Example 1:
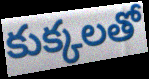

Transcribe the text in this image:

కుక్కలతో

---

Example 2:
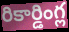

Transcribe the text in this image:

రికార్డింగ్ల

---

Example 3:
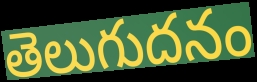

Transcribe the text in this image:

తెలుగుదనం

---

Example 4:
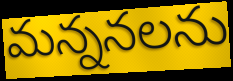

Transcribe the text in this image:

మన్ననలను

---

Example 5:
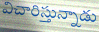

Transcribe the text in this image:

విచారిస్తున్నాడు